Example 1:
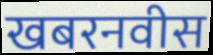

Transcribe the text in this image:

खबरनवीस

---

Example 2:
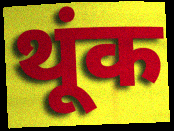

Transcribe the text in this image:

थूंक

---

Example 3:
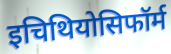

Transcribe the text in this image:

इचिथियोसिफॉर्म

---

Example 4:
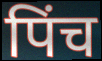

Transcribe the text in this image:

पिंच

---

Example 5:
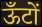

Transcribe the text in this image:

ऊँटों